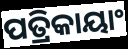
ପତ୍ରିକାୟାଂ